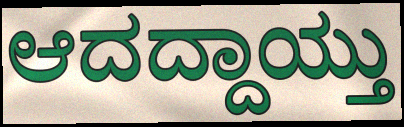
ಆದದ್ದಾಯ್ತು